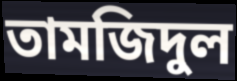
তামজিদুল